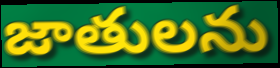
జాతులను